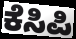
ಕೆಸಿಪಿ